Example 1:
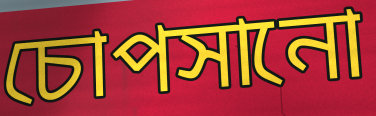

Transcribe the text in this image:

চোপসানো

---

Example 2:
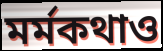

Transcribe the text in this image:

মর্মকথাও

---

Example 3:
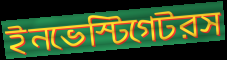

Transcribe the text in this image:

ইনভেস্টিগেটরস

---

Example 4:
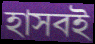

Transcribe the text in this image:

হাসবই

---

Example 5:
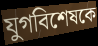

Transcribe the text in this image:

যুগবিশেষকে